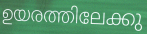
ഉയരത്തിലേക്കു